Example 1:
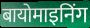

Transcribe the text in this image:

बायोमाइनिंग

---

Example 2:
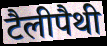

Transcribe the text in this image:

टैलीपैथी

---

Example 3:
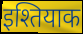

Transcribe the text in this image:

इश्तियाक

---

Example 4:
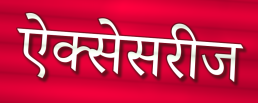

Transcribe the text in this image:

ऐक्सेसरीज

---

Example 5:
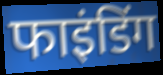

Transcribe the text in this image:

फाइंडिंग